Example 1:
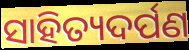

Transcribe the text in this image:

ସାହିତ୍ୟଦର୍ପଣ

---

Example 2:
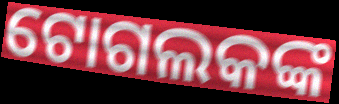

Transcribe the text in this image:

ଟୋଗଲକଙ୍କ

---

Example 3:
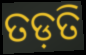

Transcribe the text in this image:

ତଡ଼ତି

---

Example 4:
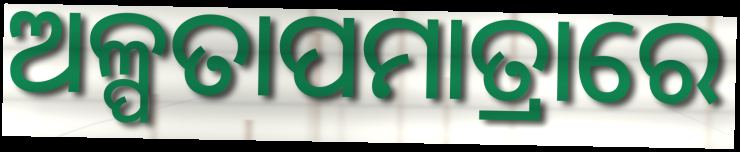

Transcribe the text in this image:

ଅଳ୍ପତାପମାତ୍ରାରେ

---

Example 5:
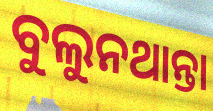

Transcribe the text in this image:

ବୁଲୁନଥାନ୍ତା